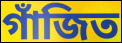
গাঁজিত